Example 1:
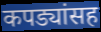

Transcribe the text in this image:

कपड्यांसह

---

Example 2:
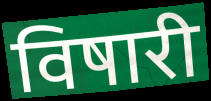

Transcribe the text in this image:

विषारी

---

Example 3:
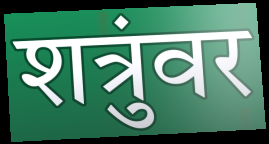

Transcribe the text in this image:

शत्रुंवर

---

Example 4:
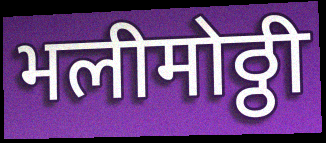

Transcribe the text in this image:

भलीमोठ्ठी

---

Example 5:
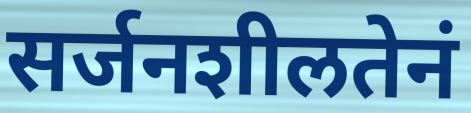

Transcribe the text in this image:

सर्जनशीलतेनं